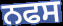
ਨਫਸ